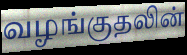
வழங்குதலின்